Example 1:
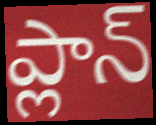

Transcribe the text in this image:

ప్లాన్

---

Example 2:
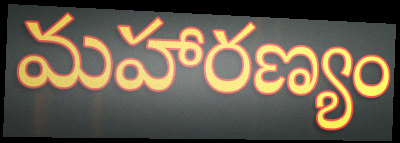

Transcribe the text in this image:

మహారణ్యం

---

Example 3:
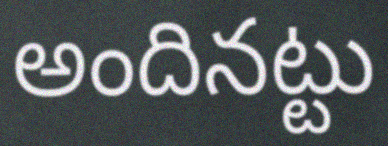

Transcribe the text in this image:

అందినట్టు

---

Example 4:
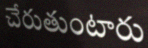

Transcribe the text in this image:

చేరుతుంటారు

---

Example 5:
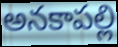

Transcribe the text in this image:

అనకాపల్లి